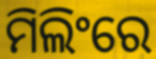
ମିଲିଂରେ